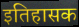
इतिहासक